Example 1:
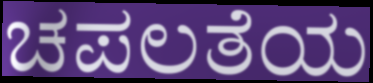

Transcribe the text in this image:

ಚಪಲತೆಯ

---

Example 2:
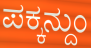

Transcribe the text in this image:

ಪಕ್ಕನ್ದುಂ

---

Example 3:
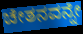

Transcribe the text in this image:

ಚೇತನವನ್ನೇ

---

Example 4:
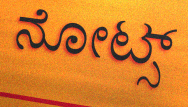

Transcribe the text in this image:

ನೋಟ್ಸ್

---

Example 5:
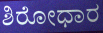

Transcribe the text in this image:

ಶಿರೋಧಾರ